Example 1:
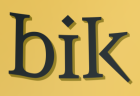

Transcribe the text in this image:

bik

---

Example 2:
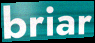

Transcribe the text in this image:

briar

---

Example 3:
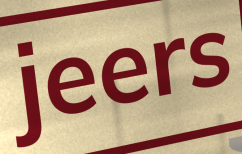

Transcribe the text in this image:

jeers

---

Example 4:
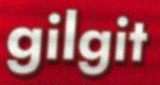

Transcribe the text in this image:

gilgit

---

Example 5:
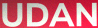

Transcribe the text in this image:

UDAN